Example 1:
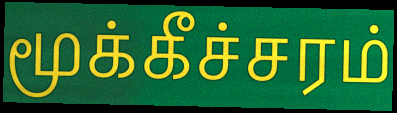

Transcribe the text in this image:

மூக்கீச்சரம்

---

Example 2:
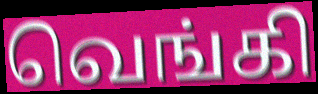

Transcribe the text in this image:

வெங்கி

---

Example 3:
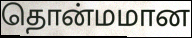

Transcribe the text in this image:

தொன்மமான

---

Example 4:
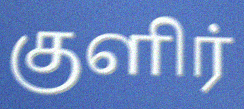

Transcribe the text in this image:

குளிர்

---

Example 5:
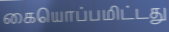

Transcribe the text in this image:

கையொப்பமிட்டது